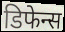
डिफेन्स